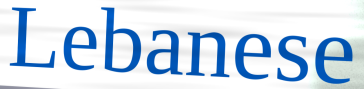
Lebanese